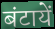
बंटायें